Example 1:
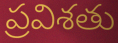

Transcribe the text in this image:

ప్రవిశతు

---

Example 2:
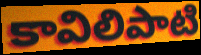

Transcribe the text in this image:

కావిలిపాటి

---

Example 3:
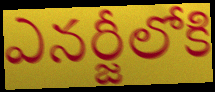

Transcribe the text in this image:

ఎనర్జీలోకి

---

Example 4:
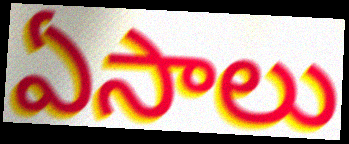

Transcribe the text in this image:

ఏసాలు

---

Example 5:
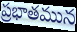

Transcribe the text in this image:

ప్రభాతమున